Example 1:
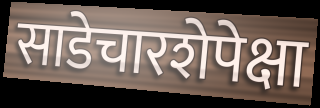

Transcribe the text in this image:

साडेचारशेपेक्षा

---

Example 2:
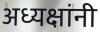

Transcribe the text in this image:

अध्यक्षांनी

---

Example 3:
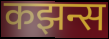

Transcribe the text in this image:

कझन्स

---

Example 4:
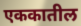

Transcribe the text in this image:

एककातील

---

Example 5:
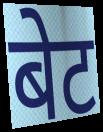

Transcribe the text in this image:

बेट